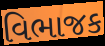
વિભાજક